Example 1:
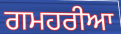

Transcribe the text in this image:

ਗਮਹਰੀਆ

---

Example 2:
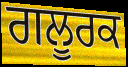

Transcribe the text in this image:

ਗਲੂਰਕ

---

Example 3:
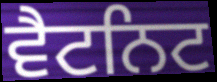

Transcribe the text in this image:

ਵੈਟਨਿਟ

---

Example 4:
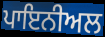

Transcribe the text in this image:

ਪਾਇਨੀਅਲ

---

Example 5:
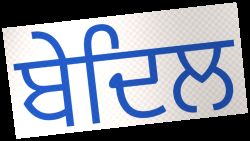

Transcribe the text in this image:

ਬੇਦਿਲ